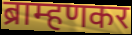
ब्राम्हणकर